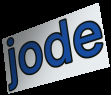
jode